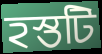
হস্তটি